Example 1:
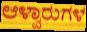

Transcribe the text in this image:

ಆಳ್ವಾರುಗಳ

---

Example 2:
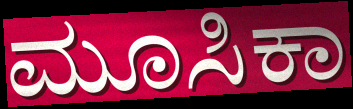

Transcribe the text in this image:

ಮೂಸಿಕಾ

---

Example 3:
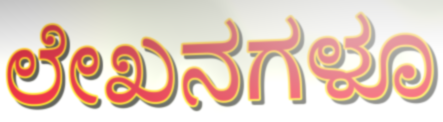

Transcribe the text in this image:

ಲೇಖನಗಳೂ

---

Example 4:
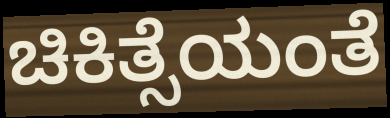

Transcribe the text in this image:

ಚಿಕಿತ್ಸೆಯಂತೆ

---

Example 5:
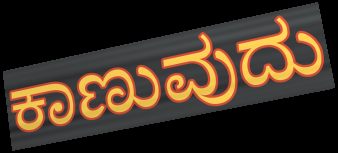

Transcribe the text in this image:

ಕಾಣುವುದು